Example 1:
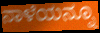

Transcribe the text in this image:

ನಾಳೆಯನ್ನೂ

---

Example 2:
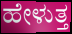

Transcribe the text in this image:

ಹೇಳುತ್ತ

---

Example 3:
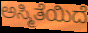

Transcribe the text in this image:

ಅಸ್ಮಿತೆಯಿದೆ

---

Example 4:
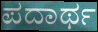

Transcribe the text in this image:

ಪದಾರ್ಥ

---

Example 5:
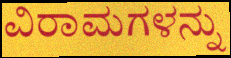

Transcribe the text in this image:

ವಿರಾಮಗಳನ್ನು